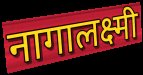
नागालक्ष्मी